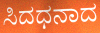
ಸಿದಧನಾದ